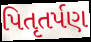
પિતૃતર્પણ